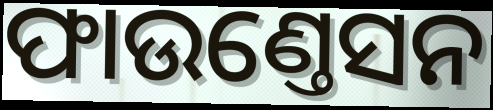
ଫାଉଣ୍ତେସନ